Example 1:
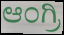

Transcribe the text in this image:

ಆಂಗ್ರಿ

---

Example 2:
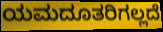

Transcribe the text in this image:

ಯಮದೂತರಿಗಲ್ಲದೆ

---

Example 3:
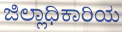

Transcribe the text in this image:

ಜಿಲ್ಲಾಧಿಕಾರಿಯ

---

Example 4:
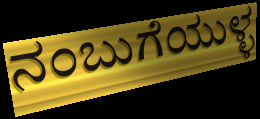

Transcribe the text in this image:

ನಂಬುಗೆಯುಳ್ಳ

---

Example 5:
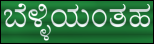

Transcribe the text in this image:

ಬೆಳ್ಳಿಯಂತಹ